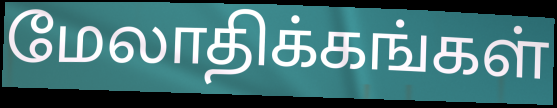
மேலாதிக்கங்கள்